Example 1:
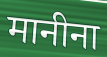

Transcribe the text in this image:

मानीना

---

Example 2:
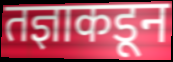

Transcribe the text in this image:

तज्ञाकडून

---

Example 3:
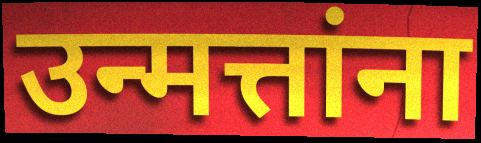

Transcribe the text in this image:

उन्मत्तांना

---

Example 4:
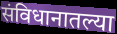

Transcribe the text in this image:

संविधानातल्या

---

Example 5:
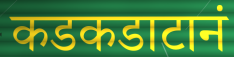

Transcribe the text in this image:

कडकडाटानं